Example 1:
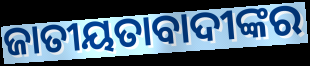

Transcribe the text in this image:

ଜାତୀୟତାବାଦୀଙ୍କର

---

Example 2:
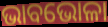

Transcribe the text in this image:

ଭାବଭୋଳା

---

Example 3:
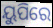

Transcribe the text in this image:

ୟୁପିରେ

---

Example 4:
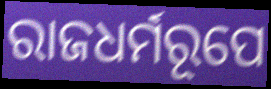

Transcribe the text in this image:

ରାଜଧର୍ମରୂପେ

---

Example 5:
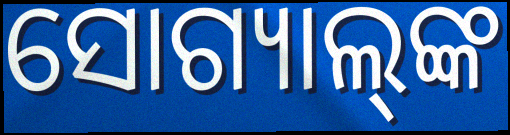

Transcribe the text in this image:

ସୋଗ୍ୟାଲ୍‌ଙ୍କ